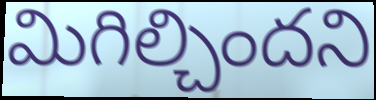
మిగిల్చిందని